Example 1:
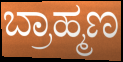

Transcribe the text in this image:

ಬ್ರಾಹ್ಮಣ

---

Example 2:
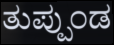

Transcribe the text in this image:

ತುಪ್ಪುಂಡ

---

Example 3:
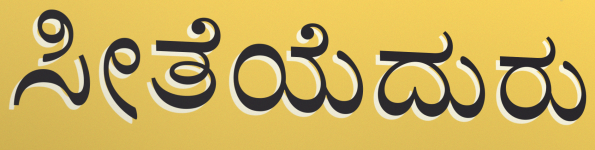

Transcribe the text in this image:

ಸೀತೆಯೆದುರು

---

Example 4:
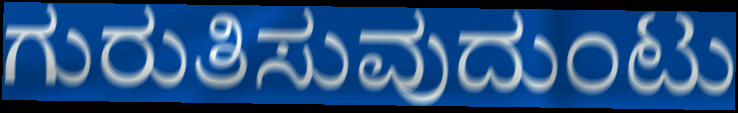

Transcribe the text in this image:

ಗುರುತಿಸುವುದುಂಟು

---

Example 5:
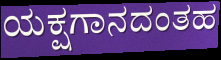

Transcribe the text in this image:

ಯಕ್ಷಗಾನದಂತಹ